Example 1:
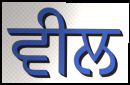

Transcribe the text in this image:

ਵੀਲ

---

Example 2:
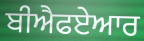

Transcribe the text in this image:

ਬੀਐਫਏਆਰ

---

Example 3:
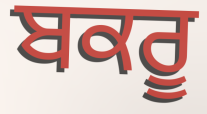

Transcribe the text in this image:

ਬਕਰੂ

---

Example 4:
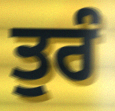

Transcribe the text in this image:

ਤੁਰੰ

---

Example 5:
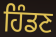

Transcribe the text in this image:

ਹਿੰਡਣ